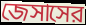
জেসাসের